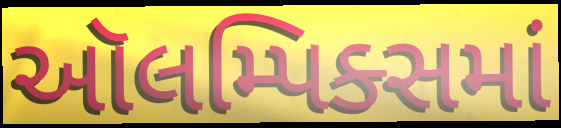
ઑલમ્પિક્સમાં